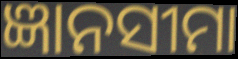
ଜ୍ଞାନସୀମା